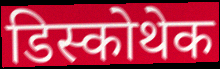
डिस्कोथेक